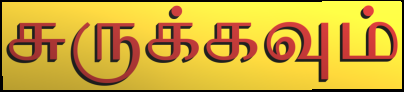
சுருக்கவும்